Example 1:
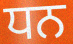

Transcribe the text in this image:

ਧਨ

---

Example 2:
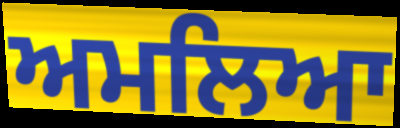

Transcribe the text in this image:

ਅਮਲਿਆ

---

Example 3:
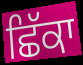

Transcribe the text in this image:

ਛਿੱਕਾ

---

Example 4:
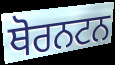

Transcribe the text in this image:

ਥੋਰਨਟਨ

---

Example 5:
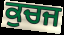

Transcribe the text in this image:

ਕੁਚਜ